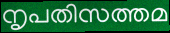
നൃപതിസത്തമ